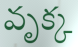
వృక్క